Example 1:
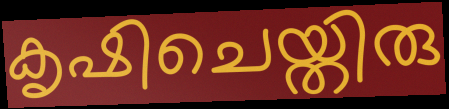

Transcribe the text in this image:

കൃഷിചെയ്തിരു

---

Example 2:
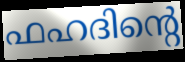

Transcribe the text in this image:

ഫഹദിന്റെ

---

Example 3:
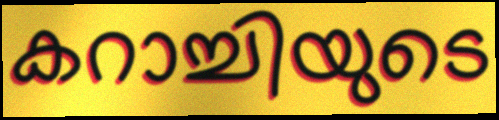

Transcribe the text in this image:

കറാച്ചിയുടെ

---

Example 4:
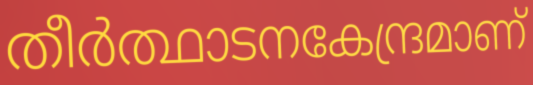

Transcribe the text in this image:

തീർത്ഥാടനകേന്ദ്രമാണ്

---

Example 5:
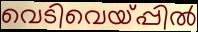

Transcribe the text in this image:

വെടിവെയ്പ്പിൽ